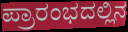
ಪ್ರಾರಂಭದಲ್ಲಿನ